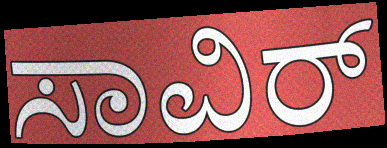
ಸಾವಿರ್